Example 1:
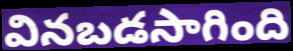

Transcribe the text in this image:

వినబడసాగింది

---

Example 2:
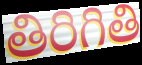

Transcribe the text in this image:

తిరిగితి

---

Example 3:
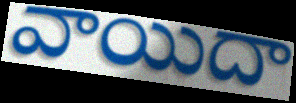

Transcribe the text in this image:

వాయిదా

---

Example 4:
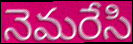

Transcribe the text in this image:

నెమరేసి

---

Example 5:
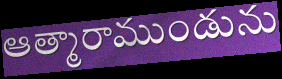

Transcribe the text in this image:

ఆత్మారాముండును